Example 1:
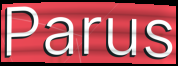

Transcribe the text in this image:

Parus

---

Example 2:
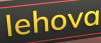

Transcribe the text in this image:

Iehova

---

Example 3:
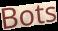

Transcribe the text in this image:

Bots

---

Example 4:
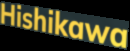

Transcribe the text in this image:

Hishikawa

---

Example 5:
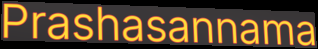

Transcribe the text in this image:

Prashasannama